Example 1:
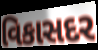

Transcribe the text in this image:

વિકાસદર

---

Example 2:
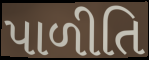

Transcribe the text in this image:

પાળીતિ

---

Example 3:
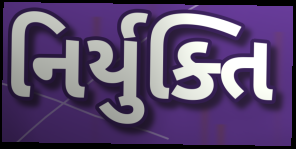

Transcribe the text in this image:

નિર્યુક્તિ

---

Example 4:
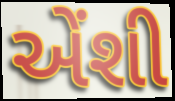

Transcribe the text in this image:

એંશી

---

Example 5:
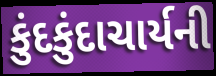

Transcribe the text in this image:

કુંદકુંદાચાર્યની